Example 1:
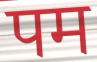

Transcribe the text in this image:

पम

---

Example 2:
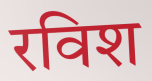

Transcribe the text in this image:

रविश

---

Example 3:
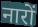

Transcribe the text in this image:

नारों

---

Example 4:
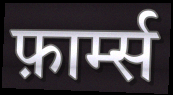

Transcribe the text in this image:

फ़ार्म्स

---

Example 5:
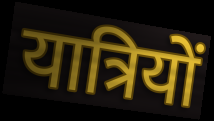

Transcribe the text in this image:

यात्रियों